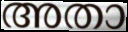
അതാ